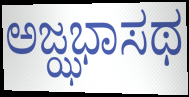
ಅಜ್ಝಭಾಸಥ